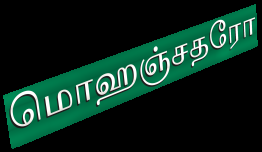
மொஹஞ்சதரோ